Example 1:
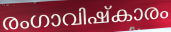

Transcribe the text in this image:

രംഗാവിഷ്‌കാരം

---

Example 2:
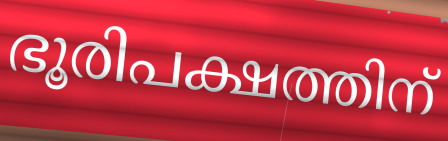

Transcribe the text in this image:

ഭൂരിപക്ഷത്തിന്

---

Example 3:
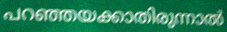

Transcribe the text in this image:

പറഞ്ഞയക്കാതിരുന്നാൽ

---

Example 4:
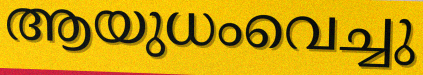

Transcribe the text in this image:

ആയുധംവെച്ചു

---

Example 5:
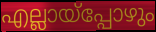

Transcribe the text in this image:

എല്ലായ്പ്പോഴും